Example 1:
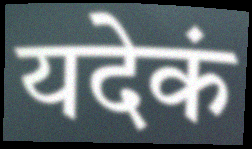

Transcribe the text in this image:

यदेकं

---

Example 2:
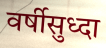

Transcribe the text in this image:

वर्षीसुध्दा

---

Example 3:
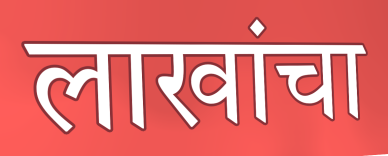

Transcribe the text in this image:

लाखांचा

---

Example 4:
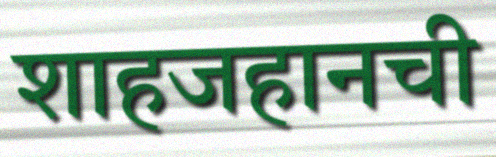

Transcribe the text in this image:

शाहजहानची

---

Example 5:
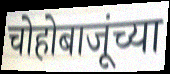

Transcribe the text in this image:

चोहोबाजूंच्या